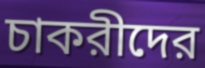
চাকরীদের